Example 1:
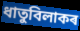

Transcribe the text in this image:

ধাতুবিলাকৰ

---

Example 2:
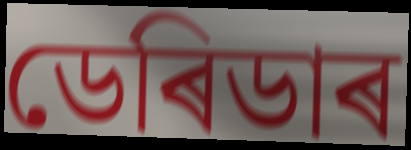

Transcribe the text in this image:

ডেৰিডাৰ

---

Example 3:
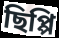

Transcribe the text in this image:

ছিপ্পি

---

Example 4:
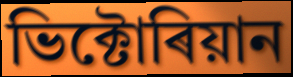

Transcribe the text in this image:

ভিক্টোৰিয়ান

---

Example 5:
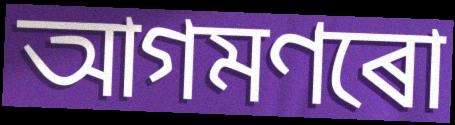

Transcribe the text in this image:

আগমণৰো